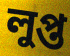
লুপ্ত